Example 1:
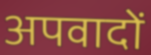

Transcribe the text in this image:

अपवादों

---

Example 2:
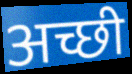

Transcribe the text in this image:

अच्छी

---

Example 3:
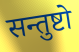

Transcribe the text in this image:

सन्तुष्टो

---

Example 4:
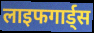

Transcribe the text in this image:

लाइफगार्ड्स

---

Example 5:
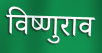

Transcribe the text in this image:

विष्णुराव